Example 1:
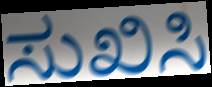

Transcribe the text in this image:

ಸುಖಿಸಿ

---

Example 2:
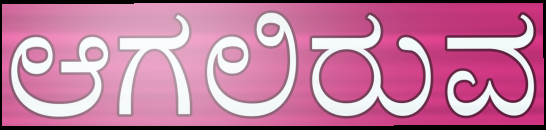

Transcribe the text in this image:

ಆಗಲಿರುವ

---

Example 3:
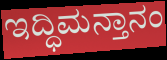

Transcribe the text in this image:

ಇದ್ಧಿಮನ್ತಾನಂ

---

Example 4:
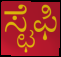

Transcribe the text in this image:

ಸ್ಟೆಫಿ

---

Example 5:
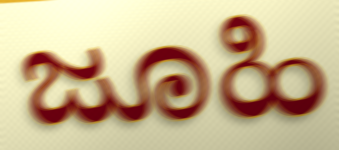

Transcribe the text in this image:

ಜೂಹಿ